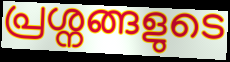
പ്രശ്നങ്ങളുടെ